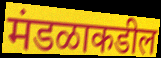
मंडळाकडील